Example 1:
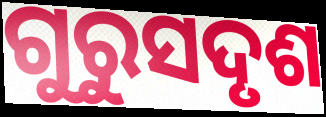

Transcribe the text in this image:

ଗୁରୁସଦୃଶ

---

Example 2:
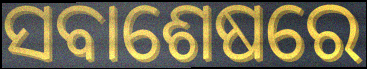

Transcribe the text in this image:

ସବାଶେଷରେ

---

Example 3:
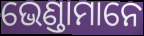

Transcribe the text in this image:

ଭେଣ୍ଡାମାନେ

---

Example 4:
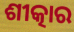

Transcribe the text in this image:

ଶୀତ୍କାର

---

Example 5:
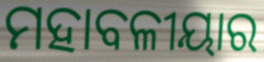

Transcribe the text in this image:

ମହାବଳୀୟାର